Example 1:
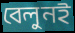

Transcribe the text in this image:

বেলুনই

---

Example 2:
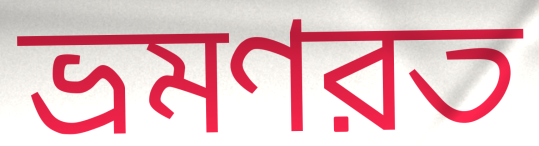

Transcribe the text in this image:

ভ্রমণরত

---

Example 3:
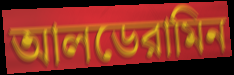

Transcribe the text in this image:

আলডেরামিন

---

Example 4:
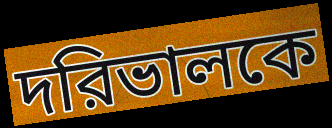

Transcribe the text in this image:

দরিভালকে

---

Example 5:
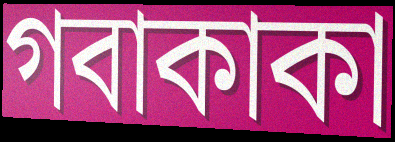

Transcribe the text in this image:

গবাকাকা